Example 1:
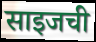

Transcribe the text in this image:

साइजची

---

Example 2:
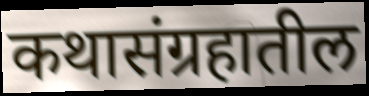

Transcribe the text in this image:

कथासंग्रहातील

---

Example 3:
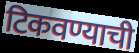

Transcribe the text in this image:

टिकवण्याची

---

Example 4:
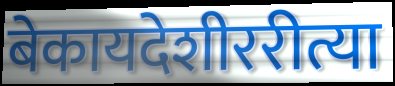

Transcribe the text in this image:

बेकायदेशीररीत्या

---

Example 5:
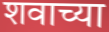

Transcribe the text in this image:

शवाच्या